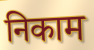
निकाम